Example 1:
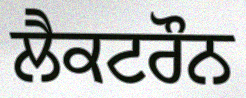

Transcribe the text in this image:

ਲੈਕਟਰੌਨ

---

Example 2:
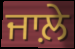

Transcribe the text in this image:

ਜਾਲ਼ੇ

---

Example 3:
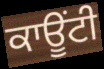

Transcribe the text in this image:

ਕਾਊਂਟੀ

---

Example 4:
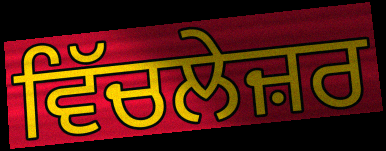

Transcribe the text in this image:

ਵਿੱਚਲੇਜ਼ਰ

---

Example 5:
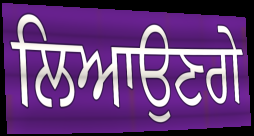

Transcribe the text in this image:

ਲਿਆਉਣਗੇ